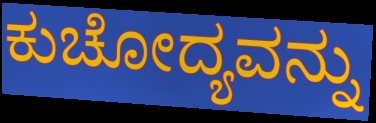
ಕುಚೋದ್ಯವನ್ನು